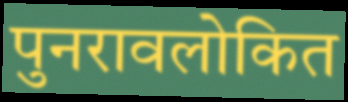
पुनरावलोकित